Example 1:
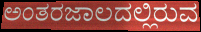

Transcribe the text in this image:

ಅಂತರಜಾಲದಲ್ಲಿರುವ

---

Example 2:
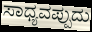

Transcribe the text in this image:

ಸಾಧ್ಯವಪ್ಪುದು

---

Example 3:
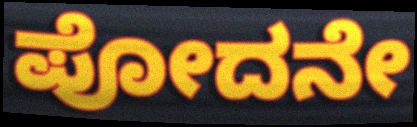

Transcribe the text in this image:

ಪೋದನೇ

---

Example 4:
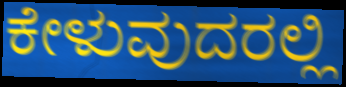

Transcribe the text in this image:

ಕೇಳುವುದರಲ್ಲಿ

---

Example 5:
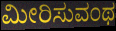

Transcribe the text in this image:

ಮೀರಿಸುವಂಥ